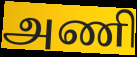
அணி